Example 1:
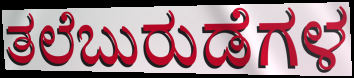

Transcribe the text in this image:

ತಲೆಬುರುಡೆಗಳ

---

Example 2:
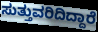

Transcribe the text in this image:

ಸುತ್ತುವರಿದಿದ್ದಾರೆ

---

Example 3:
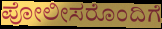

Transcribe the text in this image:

ಪೋಲೀಸರೊಂದಿಗೆ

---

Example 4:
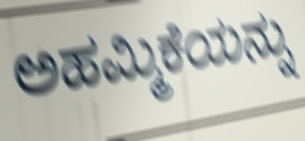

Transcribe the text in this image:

ಅಹಮ್ಮಿಕೆಯನ್ನು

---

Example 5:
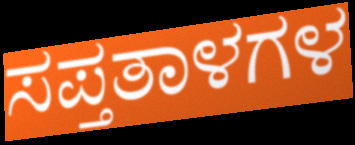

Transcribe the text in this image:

ಸಪ್ತತಾಳಗಳ